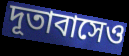
দূতাবাসেও